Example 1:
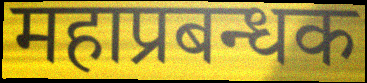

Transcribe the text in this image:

महाप्रबन्धक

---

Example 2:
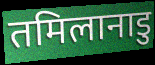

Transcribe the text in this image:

तमिलानाडु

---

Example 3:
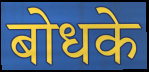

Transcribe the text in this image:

बोधके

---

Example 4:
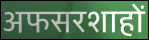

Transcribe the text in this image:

अफसरशाहों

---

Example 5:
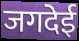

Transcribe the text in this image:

जगदेई